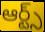
ఆర్ట్స్